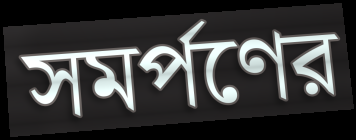
সমর্পণের